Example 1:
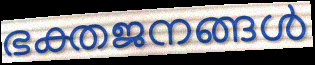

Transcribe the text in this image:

ഭക്തജനങ്ങൾ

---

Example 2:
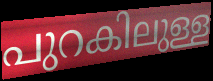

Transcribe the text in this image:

പുറകിലുള്ള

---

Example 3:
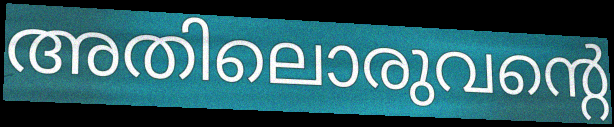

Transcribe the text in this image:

അതിലൊരുവന്റെ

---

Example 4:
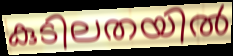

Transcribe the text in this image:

കുടിലതയിൽ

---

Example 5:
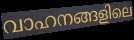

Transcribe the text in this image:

വാഹനങ്ങളിലെ